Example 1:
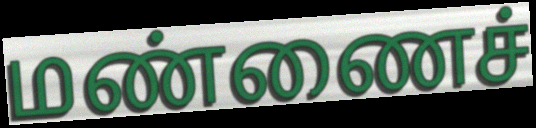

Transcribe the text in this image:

மண்ணைச்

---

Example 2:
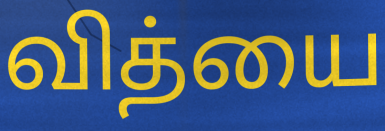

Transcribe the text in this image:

வித்யை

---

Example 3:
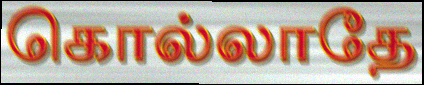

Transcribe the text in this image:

கொல்லாதே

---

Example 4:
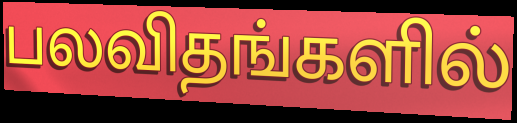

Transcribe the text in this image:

பலவிதங்களில்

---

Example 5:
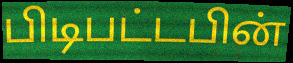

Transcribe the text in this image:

பிடிபட்டபின்